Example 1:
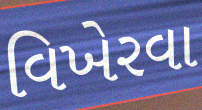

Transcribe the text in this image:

વિખેરવા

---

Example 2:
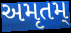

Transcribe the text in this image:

અમૃતમ્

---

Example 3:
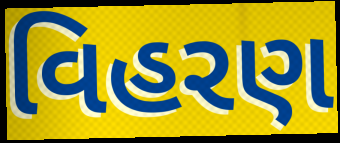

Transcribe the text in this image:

વિહરણ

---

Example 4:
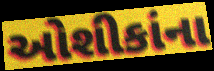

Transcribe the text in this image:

ઓશીકાંના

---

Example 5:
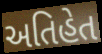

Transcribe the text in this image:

અતિહેત